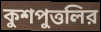
কুশপুত্তলির